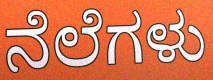
ನೆಲೆಗಳು